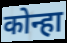
कोन्हा